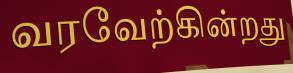
வரவேற்கின்றது